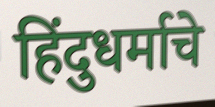
हिंदुधर्माचे